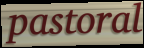
pastoral